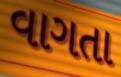
વાગતા